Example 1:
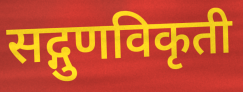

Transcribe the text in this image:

सद्गुणविकृती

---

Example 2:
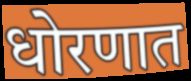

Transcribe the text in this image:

धोरणात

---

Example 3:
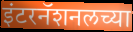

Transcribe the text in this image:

इंटरनॅशनलच्या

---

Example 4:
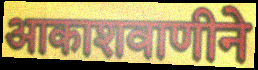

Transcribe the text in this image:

आकाशवाणीने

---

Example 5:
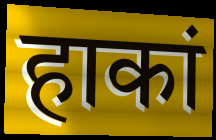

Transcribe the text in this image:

हाकां